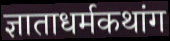
ज्ञाताधर्मकथांग